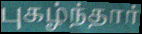
புகழ்ந்தார்